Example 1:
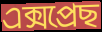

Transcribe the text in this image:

এক্সপ্ৰেছ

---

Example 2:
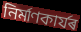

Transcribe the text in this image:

নিৰ্মাণকাৰ্যৰ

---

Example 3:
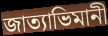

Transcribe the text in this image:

জাত্যাভিমানী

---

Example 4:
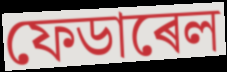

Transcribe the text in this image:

ফেডাৰেল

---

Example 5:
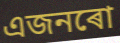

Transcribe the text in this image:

এজনৰো